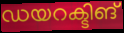
ഡയറക്ടിങ്